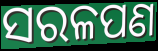
ସରଳପଣ